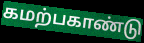
கமற்பகாண்டு